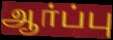
ஆர்ப்பு